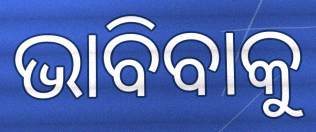
ଭାବିବାକୁ